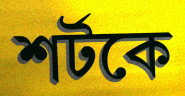
শর্টকে